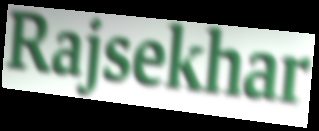
Rajsekhar